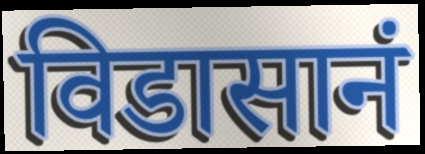
विडासानं